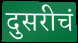
दुसरीचं